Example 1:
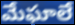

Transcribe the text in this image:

మేఘాలే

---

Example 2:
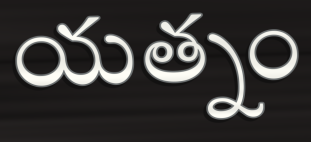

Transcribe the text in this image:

యత్నం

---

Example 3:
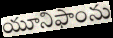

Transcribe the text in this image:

యూనిఫాంను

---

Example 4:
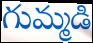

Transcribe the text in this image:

గుమ్మడి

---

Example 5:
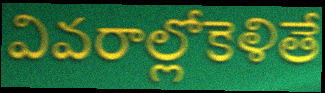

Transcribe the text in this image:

వివరాల్లోకెళితే